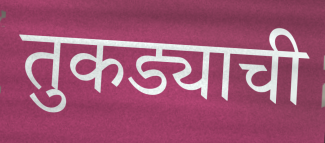
तुकड्याची